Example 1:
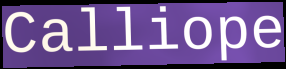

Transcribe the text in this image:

Calliope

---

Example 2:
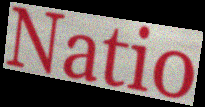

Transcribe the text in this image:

Natio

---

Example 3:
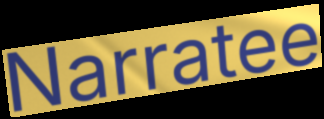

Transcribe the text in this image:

Narratee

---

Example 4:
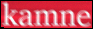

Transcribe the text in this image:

kamne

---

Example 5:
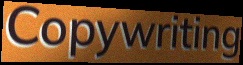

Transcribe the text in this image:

Copywriting